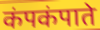
कंपकंपाते